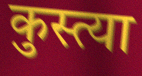
कुस्त्या